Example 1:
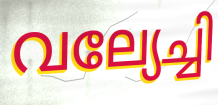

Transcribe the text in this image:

വല്യേച്ചി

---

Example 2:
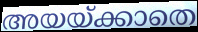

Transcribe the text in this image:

അയയ്ക്കാതെ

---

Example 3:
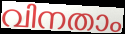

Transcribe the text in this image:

വിനതാം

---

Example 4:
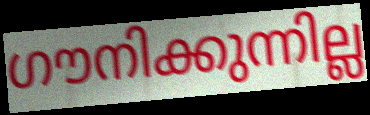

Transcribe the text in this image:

ഗൗനിക്കുന്നില്ല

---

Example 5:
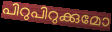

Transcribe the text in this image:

പിറുപിറുക്കുമോ